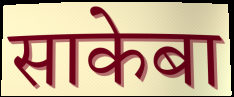
साकेबा